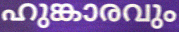
ഹുങ്കാരവും